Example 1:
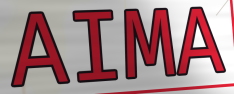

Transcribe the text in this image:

AIMA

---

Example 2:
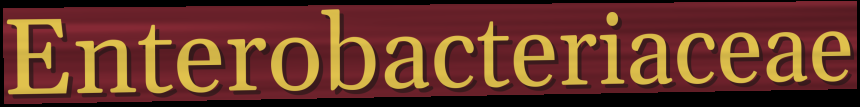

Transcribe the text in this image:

Enterobacteriaceae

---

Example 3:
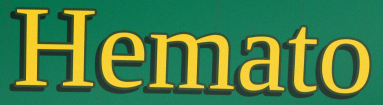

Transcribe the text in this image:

Hemato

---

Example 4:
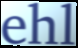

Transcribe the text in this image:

ehl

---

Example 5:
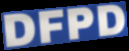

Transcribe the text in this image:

DFPD